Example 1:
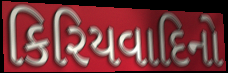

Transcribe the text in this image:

કિરિયવાદિનો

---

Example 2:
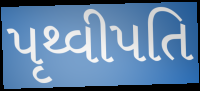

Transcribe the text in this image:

પૃથ્વીપતિ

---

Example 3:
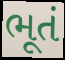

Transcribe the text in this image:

ભૂતં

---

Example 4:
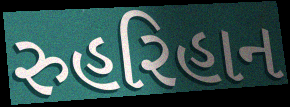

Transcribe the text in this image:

રુહરિહાન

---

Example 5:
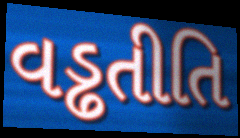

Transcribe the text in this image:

વડ્ઢતીતિ